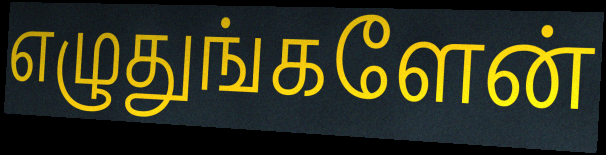
எழுதுங்களேன்